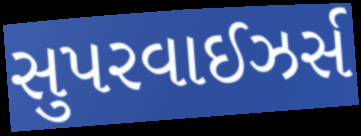
સુપરવાઈઝર્સ